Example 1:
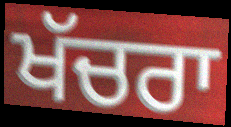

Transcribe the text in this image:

ਖੱਚਰਾ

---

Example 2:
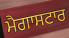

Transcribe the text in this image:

ਮੈਗਾਸਟਾਰ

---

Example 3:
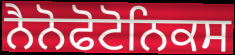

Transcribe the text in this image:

ਨੈਨੋਫੋਟੋਨਿਕਸ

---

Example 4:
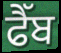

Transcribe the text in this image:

ਫੈੱਬ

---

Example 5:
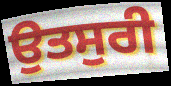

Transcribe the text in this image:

ਉਤਸੁਰੀ